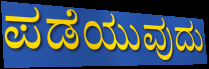
ಪಡೆಯುವುದು